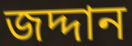
জদ্দান